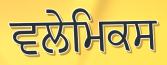
ਵਲੇਮਿਕਸ